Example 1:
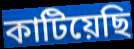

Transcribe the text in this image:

কাটিয়েছি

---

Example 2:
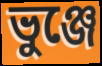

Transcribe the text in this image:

ভুঞ্জে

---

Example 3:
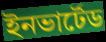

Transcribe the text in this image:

ইনভার্টেড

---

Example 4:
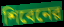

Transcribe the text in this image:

শিবেনের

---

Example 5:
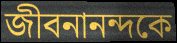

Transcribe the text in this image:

জীবনানন্দকে